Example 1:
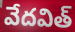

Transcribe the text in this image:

వేదవిత్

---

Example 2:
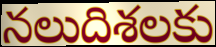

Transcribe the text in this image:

నలుదిశలకు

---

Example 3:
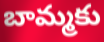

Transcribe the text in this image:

బామ్మకు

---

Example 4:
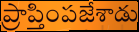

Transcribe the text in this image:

ప్రాప్తింపజేశాడు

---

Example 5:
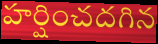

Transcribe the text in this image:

హర్షించదగిన